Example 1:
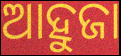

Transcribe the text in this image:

ଆହୁଜା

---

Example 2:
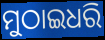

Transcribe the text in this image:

ମୁଠାଇଧରି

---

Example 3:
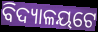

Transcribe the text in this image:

ବିଦ୍ୟାଳୟଟେ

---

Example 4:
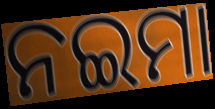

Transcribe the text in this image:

ନଇମା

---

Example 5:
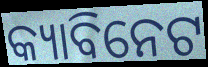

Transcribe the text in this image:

କ୍ୟାବିନେଟ